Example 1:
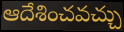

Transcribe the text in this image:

ఆదేశించవచ్చు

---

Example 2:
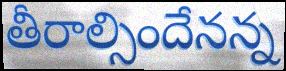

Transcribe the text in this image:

తీరాల్సిందేనన్న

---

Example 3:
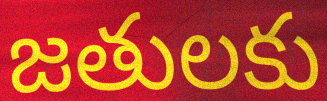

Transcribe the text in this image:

జతులకు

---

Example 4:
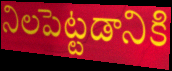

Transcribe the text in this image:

నిలపెట్టడానికి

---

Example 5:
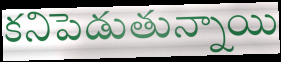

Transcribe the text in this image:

కనిపెడుతున్నాయి